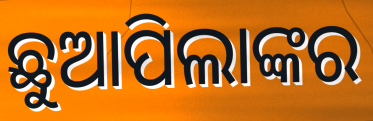
ଛୁଆପିଲାଙ୍କର